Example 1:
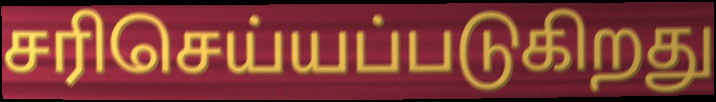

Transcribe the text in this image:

சரிசெய்யப்படுகிறது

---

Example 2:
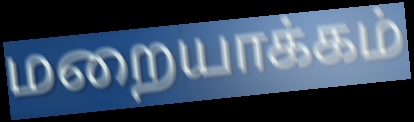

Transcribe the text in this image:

மறையாக்கம்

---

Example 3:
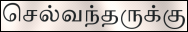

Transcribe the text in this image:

செல்வந்தருக்கு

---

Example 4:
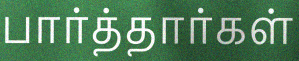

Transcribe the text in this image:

பார்த்தார்கள்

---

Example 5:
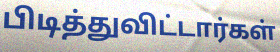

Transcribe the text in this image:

பிடித்துவிட்டார்கள்